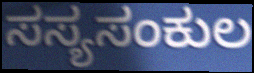
ಸಸ್ಯಸಂಕುಲ